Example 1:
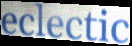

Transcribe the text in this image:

eclectic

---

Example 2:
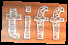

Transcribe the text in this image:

tiff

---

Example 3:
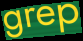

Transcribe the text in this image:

grep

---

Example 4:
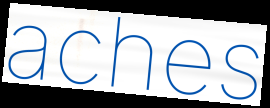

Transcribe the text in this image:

aches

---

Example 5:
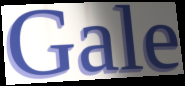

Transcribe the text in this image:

Gale